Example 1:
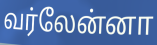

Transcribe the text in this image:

வர்லேன்னா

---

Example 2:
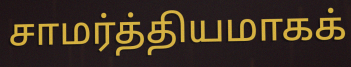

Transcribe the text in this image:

சாமர்த்தியமாகக்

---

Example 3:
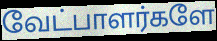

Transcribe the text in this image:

வேட்பாளர்களே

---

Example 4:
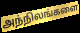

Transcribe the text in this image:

அந்நிலங்களை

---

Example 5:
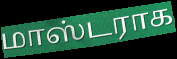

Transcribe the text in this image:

மாஸ்டராக